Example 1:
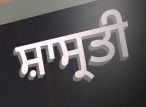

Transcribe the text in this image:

ਸ਼ਾਸ੍ਰਤੀ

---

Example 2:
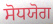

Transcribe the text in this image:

ਸੋਧਯੋਗ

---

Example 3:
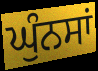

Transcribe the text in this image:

ਘੁੰਨਸਾਂ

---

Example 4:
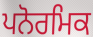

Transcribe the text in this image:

ਪਨੋਰਮਿਕ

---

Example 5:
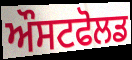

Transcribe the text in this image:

ਔਸਟਫੋਲਡ